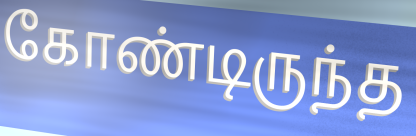
கோண்டிருந்த